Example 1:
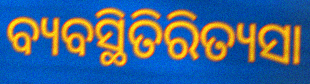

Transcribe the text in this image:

ବ୍ୟବସ୍ଥିତିରିତ୍ୟସା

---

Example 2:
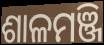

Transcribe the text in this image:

ଶାଳମଞ୍ଜି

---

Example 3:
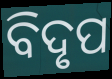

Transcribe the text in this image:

ବିଦୃପ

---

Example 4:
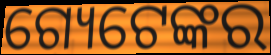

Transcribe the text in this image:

ଗ୍ୟେଟେଙ୍କର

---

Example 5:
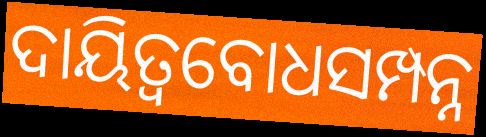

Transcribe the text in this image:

ଦାୟିତ୍ୱବୋଧସମ୍ପନ୍ନ